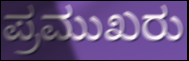
ಪ್ರಮುಖರು